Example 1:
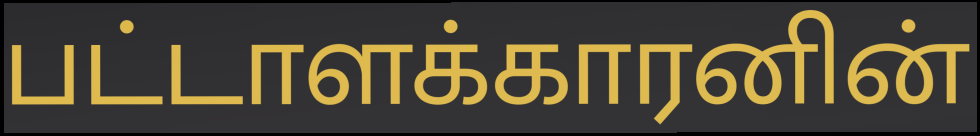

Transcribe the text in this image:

பட்டாளக்காரனின்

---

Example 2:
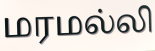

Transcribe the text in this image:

மரமல்லி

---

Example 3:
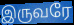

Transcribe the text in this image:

இருவரே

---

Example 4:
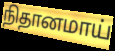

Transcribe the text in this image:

நிதானமாய்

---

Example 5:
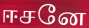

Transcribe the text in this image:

ஈசனே